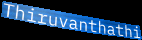
Thiruvanthathi